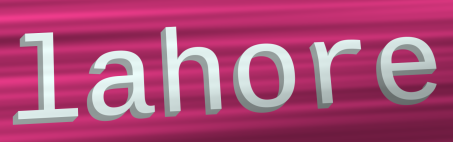
lahore